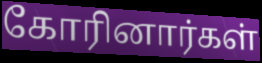
கோரினார்கள்